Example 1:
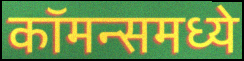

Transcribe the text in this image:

कॉमन्समध्ये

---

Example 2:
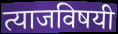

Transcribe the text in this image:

त्याजविषयी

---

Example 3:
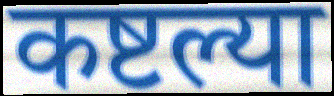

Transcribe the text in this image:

कष्टल्या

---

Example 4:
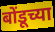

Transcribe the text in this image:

बोंडूच्या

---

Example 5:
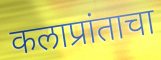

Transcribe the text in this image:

कलाप्रांताचा